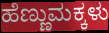
ಹೆಣ್ಣುಮಕ್ಕಳು